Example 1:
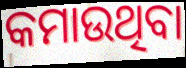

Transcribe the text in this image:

କମାଉଥିବା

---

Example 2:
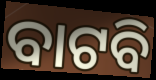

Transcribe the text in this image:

ବାଟବି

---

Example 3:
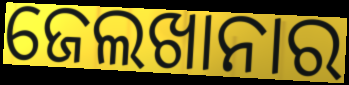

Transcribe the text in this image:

ଜେଲଖାନାର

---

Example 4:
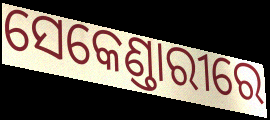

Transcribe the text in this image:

ସେକେଣ୍ଡାରୀରେ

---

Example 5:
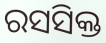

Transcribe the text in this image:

ରସସିକ୍ତ